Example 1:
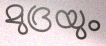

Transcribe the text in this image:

മുദ്രയും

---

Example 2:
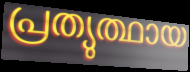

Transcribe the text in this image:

പ്രത്യുത്ഥായ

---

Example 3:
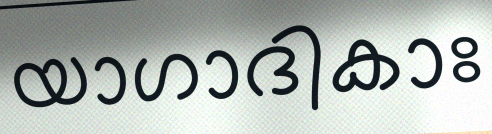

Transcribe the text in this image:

യാഗാദികാഃ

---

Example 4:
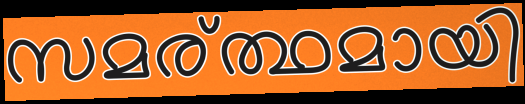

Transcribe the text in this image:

സമര്ത്ഥമായി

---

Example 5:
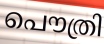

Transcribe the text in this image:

പൌത്രി